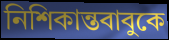
নিশিকান্তবাবুকে